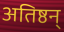
अतिष्ठन्